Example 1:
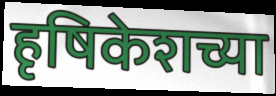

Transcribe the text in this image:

हृषिकेशच्या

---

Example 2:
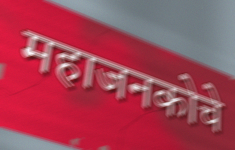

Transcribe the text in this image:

महाजनकोचे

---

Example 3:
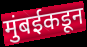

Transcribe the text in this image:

मुंबईकडून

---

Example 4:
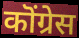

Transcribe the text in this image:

कॊंग्रेस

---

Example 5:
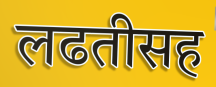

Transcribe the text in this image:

लढतीसह